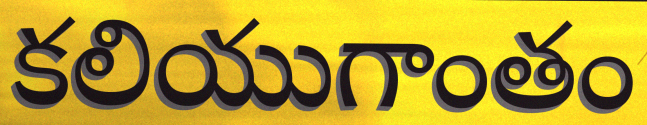
కలియుగాంతం